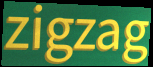
zigzag